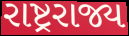
રાષ્ટ્રરાજ્ય